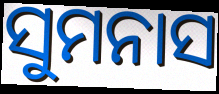
ସୁମନାସ